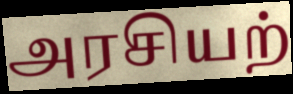
அரசியற்